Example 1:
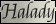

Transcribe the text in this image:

Halady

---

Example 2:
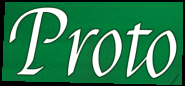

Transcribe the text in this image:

Proto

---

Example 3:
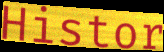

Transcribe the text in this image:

Histor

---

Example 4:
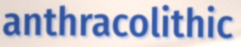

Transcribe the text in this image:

anthracolithic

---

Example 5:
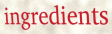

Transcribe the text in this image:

ingredients